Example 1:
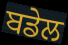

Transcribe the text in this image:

ਬਡੇਲ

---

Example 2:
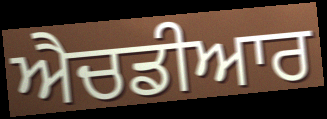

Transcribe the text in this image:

ਐਚਡੀਆਰ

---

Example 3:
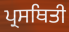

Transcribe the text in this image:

ਪ੍ਰਸਥਿਤੀ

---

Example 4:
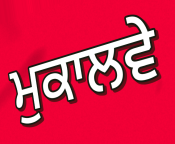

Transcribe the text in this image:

ਮੁਕਾਲਵੇ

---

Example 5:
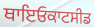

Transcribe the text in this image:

ਥਾਇਓਕਾਟਸੀਡ